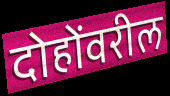
दोहोंवरील